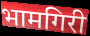
भामगिरी